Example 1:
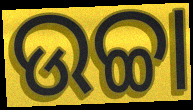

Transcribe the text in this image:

ଉଚ୍ଚା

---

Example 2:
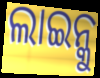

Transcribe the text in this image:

ଲାଇନ୍କୁ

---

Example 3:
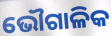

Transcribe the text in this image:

ଭୌଗାଳିକ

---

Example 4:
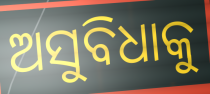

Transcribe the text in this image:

ଅସୁବିଧାକୁ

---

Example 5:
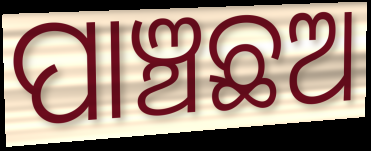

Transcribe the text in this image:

ପାଞ୍ଚଛଅ